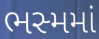
ભસ્મમાં